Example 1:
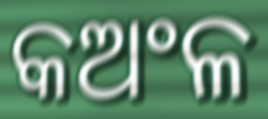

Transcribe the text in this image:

କଅଂଳ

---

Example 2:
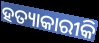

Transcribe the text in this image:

ହତ୍ୟାକାରୀକି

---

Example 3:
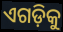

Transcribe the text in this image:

ଏଗଡ଼ିକୁ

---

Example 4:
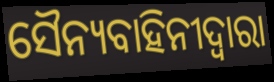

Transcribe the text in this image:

ସୈନ୍ୟବାହିନୀଦ୍ୱାରା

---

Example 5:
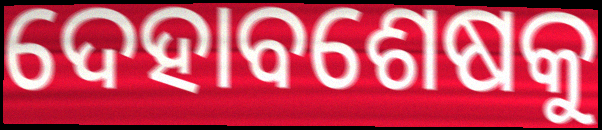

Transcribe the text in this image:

ଦେହାବଶେଷକୁ